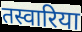
तस्वारिया